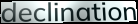
declination